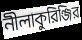
নীলাকুরিঞ্জির